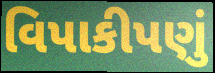
વિપાકીપણું